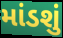
માંડશું